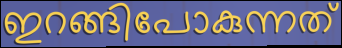
ഇറങ്ങിപോകുന്നത്